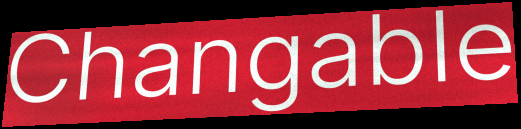
Changable